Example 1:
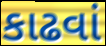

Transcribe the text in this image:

કાઢવાં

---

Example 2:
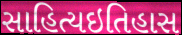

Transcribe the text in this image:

સાહિત્યઇતિહાસ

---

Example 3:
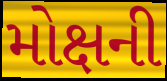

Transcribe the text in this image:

મોક્ષની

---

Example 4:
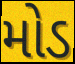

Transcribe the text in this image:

મોડ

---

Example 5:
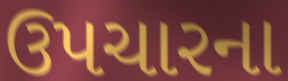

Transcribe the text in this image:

ઉપચારના